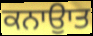
ਕਨਾਉਾਤ